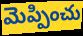
మెప్పించు